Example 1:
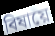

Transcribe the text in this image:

বিষায়ে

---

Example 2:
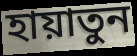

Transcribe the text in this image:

হায়াতুন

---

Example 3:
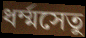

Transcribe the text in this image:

ধর্ম্মসেতু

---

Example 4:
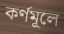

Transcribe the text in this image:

কর্ণমূলে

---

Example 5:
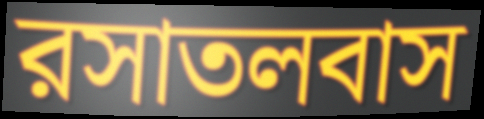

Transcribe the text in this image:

রসাতলবাস